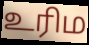
உரிம